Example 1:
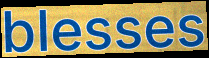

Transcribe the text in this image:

blesses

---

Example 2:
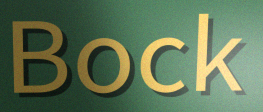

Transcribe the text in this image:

Bock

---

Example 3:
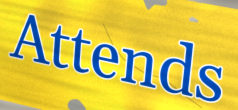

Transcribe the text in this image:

Attends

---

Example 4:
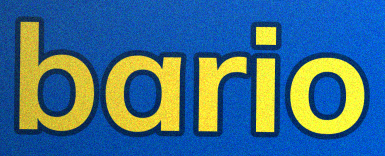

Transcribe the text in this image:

bario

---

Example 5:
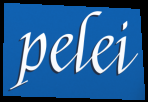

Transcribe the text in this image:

pelei